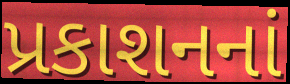
પ્રકાશનનાં